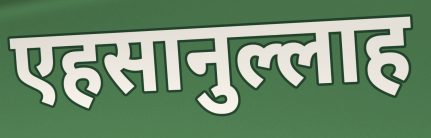
एहसानुल्लाह